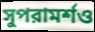
সুপরামর্শও